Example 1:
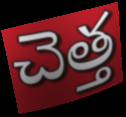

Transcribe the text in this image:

చెత్త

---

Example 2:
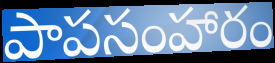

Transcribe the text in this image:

పాపసంహారం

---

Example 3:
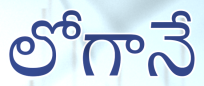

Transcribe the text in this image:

లోగానే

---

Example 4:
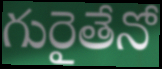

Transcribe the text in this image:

గురైతేనో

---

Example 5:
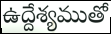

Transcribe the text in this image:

ఉద్దేశ్యముతో